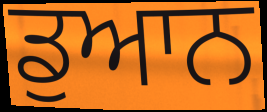
ਡੁਆਨ